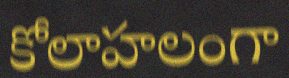
కోలాహలంగా